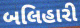
બલિહારી